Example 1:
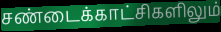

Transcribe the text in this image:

சண்டைக்காட்சிகளிலும்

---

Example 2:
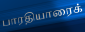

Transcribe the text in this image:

பாரதியாரைக்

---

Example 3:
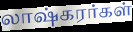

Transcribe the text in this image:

லாஷ்கரர்கள்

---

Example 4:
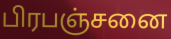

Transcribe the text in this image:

பிரபஞ்சனை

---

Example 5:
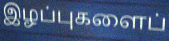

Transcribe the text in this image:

இழப்புகளைப்